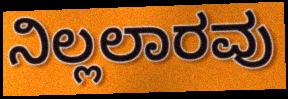
ನಿಲ್ಲಲಾರವು